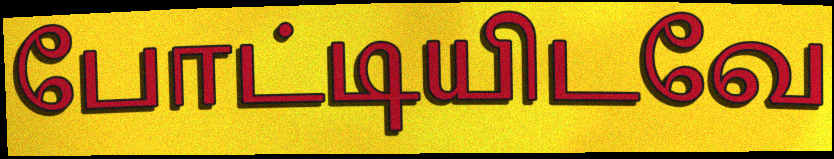
போட்டியிடவே